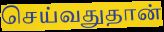
செய்வதுதான்